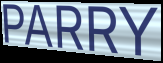
PARRY